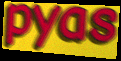
pyas